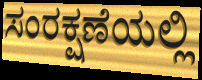
ಸಂರಕ್ಷಣೆಯಲ್ಲಿ